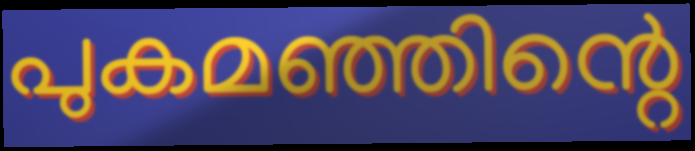
പുകമഞ്ഞിന്റെ